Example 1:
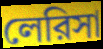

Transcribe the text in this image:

লেরিসা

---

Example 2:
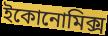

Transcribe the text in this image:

ইকোনোমিক্স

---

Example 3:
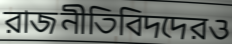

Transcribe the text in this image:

রাজনীতিবিদদেরও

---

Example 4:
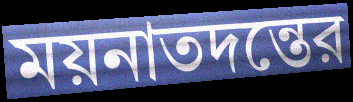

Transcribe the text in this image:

ময়নাতদন্তের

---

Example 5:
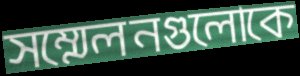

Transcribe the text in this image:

সম্মেলনগুলোকে